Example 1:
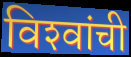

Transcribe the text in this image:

विश्वांची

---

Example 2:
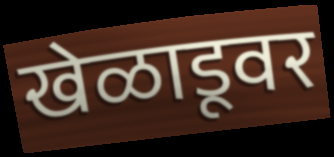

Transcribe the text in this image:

खेळाडूवर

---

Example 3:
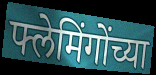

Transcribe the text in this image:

फ्लेमिंगोंच्या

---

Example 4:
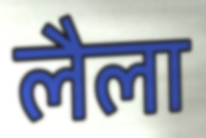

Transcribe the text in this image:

लैला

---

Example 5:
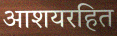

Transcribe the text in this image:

आशयरहित